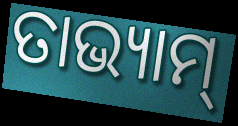
ତାଭ୍ୟାମ୍